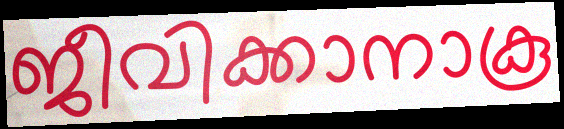
ജീവിക്കാനാകൂ